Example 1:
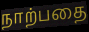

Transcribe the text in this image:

நாற்பதை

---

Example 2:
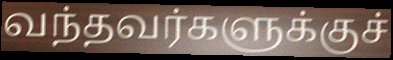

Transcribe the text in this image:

வந்தவர்களுக்குச்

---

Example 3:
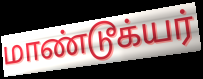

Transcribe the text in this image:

மாண்டூக்யர்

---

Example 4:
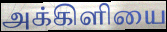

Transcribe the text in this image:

அக்கிளியை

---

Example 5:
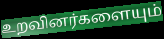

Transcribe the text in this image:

உறவினர்களையும்